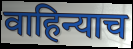
वाहिन्याच